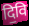
दि॒वि